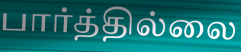
பார்த்தில்லை